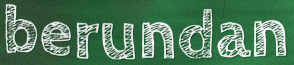
berundan